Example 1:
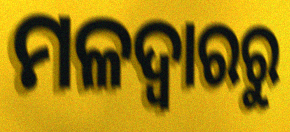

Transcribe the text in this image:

ମଳଦ୍ୱାରରୁ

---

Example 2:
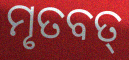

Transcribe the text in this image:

ମୃତବତ୍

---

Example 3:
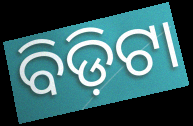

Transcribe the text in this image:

ବିଡ଼ିଟା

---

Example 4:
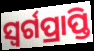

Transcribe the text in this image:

ସ୍ୱର୍ଗପ୍ରାପ୍ତି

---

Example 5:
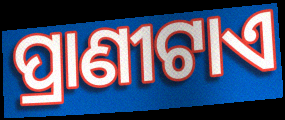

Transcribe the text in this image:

ପ୍ରାଣୀଟାଏ